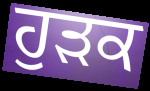
ਹੁੜਕ